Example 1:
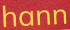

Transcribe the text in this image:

hann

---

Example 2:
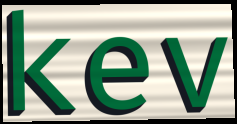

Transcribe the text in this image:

kev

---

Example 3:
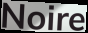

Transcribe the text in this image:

Noire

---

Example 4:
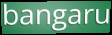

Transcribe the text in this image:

bangaru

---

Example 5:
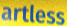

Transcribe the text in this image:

artless